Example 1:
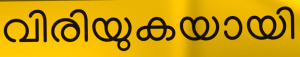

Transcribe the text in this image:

വിരിയുകയായി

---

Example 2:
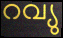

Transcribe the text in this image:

റവ്യു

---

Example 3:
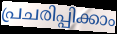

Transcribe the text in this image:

പ്രചരിപ്പിക്കാം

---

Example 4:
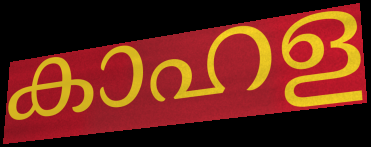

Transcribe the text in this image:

കാഹള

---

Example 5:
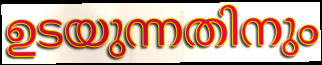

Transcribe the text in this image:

ഉടയുന്നതിനും